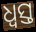
ଧ୍ବସ୍ତ